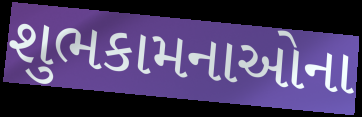
શુભકામનાઓના